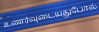
உணர்வுடையதுபோல்